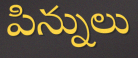
పిన్నులు